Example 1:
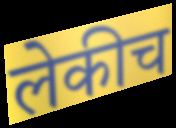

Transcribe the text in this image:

लेकीच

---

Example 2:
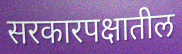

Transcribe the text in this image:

सरकारपक्षातील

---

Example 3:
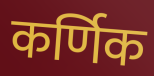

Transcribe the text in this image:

कर्णिक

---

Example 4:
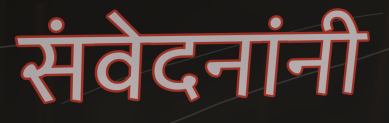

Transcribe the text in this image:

संवेदनांनी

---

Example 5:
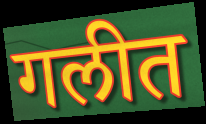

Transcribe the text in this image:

गलीत